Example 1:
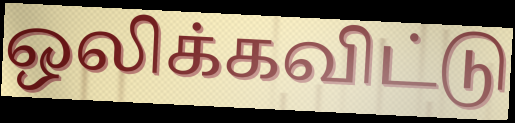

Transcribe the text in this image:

ஒலிக்கவிட்டு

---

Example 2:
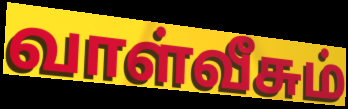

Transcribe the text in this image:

வாள்வீசும்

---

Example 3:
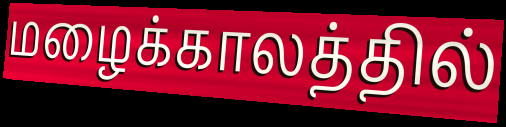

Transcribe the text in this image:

மழைக்காலத்தில்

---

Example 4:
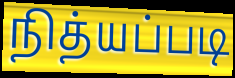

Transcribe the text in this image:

நித்யப்படி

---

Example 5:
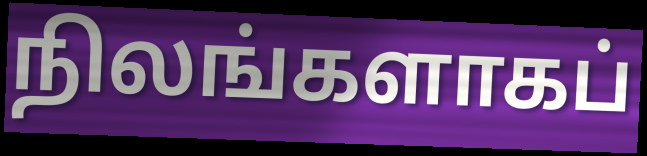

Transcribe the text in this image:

நிலங்களாகப்